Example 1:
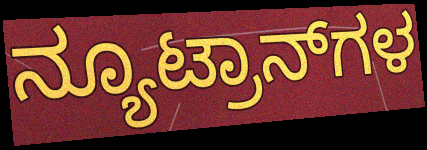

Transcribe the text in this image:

ನ್ಯೂಟ್ರಾನ್‌ಗಳ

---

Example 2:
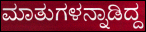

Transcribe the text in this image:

ಮಾತುಗಳನ್ನಾಡಿದ್ದ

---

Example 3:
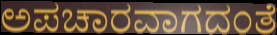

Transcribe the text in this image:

ಅಪಚಾರವಾಗದಂತೆ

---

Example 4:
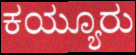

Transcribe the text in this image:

ಕಯ್ಯೂರು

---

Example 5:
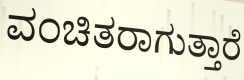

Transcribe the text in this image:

ವಂಚಿತರಾಗುತ್ತಾರೆ